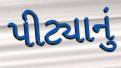
પીટ્યાનું